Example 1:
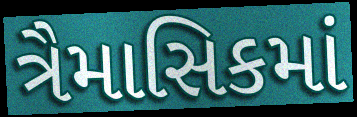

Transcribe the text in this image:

ત્રૈમાસિકમાં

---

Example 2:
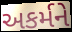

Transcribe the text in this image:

અકર્મને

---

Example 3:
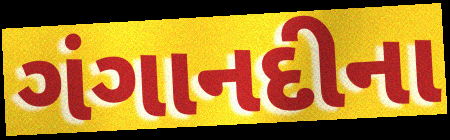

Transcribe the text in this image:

ગંગાનદીના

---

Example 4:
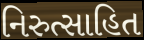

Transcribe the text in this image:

નિરુત્સાહિત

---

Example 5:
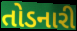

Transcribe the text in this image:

તોડનારી